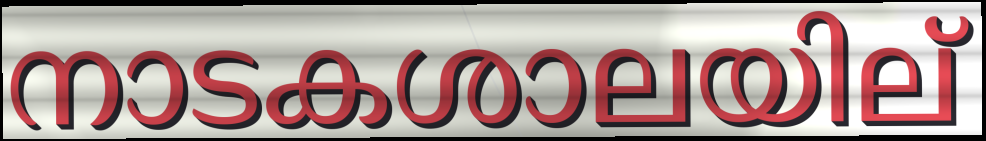
നാടകശാലയില്